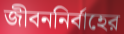
জীবননির্বাহের